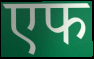
एफ